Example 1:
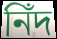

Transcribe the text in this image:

নিঁদ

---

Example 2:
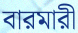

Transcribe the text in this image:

বারমারী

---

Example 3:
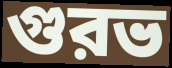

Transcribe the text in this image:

গুরভ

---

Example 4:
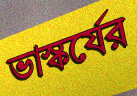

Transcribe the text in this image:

ভাস্কর্যের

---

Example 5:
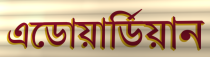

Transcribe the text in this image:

এডোয়ার্ডিয়ান